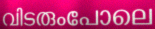
വിടരുംപോലെ